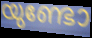
യുണ്ടോ